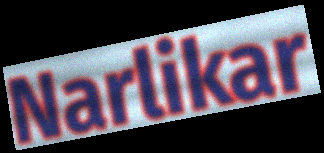
Narlikar